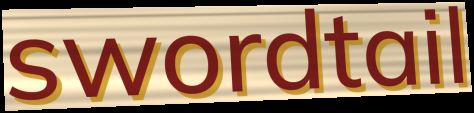
swordtail